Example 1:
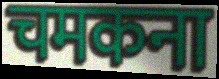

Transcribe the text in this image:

चमकना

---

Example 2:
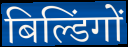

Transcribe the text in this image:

बिल्डिंगों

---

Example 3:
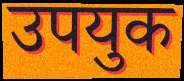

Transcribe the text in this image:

उपयुक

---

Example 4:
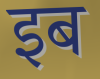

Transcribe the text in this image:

इब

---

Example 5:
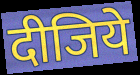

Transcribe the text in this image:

दीजिये